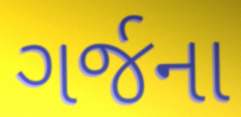
ગર્જના